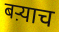
बऱ्‍याच